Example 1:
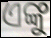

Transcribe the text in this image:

ଏଙ୍କୁ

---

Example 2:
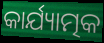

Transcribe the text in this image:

କାର୍ଯ୍ୟାତ୍ମକ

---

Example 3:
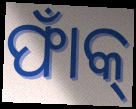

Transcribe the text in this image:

ଫାଁକ୍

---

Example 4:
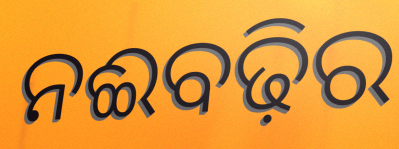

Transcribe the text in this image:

ନଈବଢ଼ିର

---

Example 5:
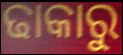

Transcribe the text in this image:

ଢାକାରୁ